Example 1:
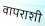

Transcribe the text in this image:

वापराशी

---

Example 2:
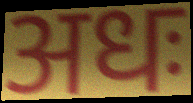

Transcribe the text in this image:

अधः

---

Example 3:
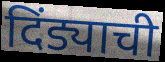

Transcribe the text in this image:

दिंड्याची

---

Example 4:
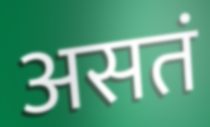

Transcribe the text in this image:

असतं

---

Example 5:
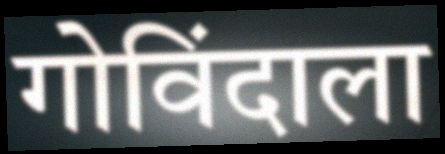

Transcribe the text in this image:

गोविंदाला